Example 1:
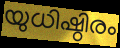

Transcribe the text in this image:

യുധിഷ്ഠിരം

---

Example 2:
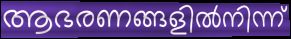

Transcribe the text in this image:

ആഭരണങ്ങളിൽനിന്ന്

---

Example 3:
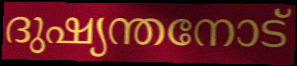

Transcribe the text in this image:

ദുഷ്യന്തനോട്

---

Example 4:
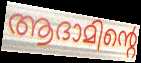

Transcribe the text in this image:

ആദാമിന്റെ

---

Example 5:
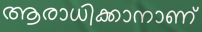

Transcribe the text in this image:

ആരാധിക്കാനാണ്